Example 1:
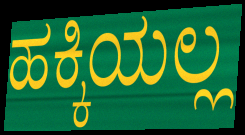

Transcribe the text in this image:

ಹಕ್ಕಿಯಲ್ಲ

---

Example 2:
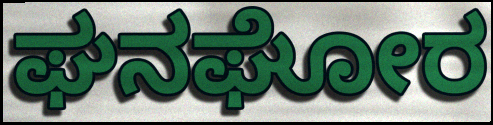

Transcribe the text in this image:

ಘನಘೋರ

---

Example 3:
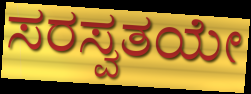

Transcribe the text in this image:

ಸರಸ್ವತಯೇ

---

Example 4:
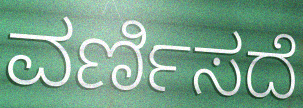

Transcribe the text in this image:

ವರ್ಣಿಸದೆ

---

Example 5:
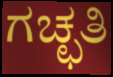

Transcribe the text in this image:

ಗಚ್ಛತಿ